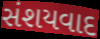
સંશયવાદ